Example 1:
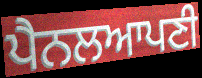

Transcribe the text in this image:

ਪੈਨਲਆਪਣੀ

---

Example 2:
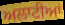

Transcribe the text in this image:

ਅਲਾਟੀਆਂ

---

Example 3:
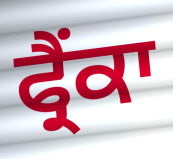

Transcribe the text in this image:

ਫ੍ਰੈਂਕਾ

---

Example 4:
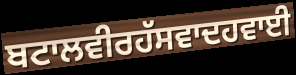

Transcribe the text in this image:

ਬਟਾਲਵੀਰਹੱਸਵਾਦਹਵਾਈ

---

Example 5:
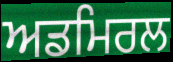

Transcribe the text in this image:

ਅਡਮਿਰਲ